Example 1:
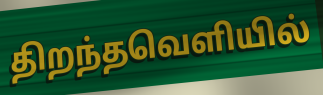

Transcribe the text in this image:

திறந்தவெளியில்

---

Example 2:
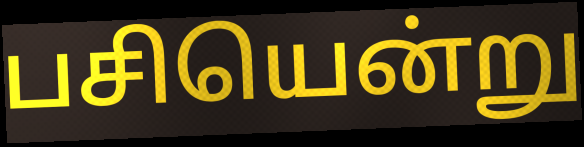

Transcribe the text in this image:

பசியென்று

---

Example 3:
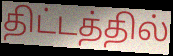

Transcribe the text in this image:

திட்டத்தில்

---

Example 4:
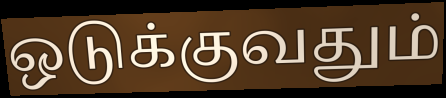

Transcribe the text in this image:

ஒடுக்குவதும்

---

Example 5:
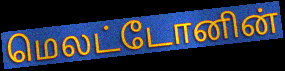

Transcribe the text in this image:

மெலட்டோனின்